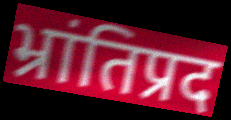
भ्रांतिप्रद